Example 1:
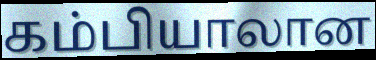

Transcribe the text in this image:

கம்பியாலான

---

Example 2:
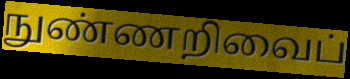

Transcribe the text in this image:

நுண்ணறிவைப்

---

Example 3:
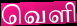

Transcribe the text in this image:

வெளி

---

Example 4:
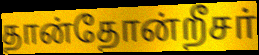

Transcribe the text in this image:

தான்தோன்றீசர்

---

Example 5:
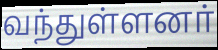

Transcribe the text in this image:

வந்துள்ளனர்